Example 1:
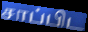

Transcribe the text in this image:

சாப்பிட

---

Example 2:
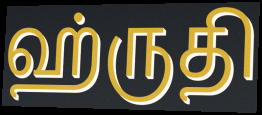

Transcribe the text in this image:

ஹ்ருதி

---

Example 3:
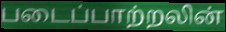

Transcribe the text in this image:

படைப்பாற்றலின்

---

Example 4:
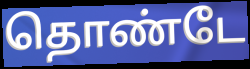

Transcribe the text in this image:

தொண்டே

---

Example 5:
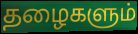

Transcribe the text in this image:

தழைகளும்